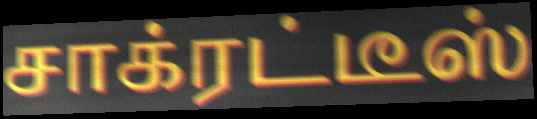
சாக்ரட்டீஸ்